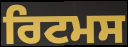
ਰਿਟਮਸ